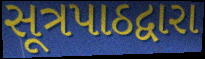
સૂત્રપાઠદ્વારા